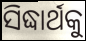
ସିଦ୍ଧାର୍ଥକୁ